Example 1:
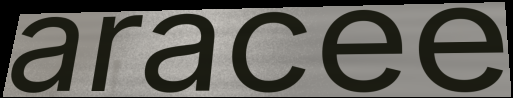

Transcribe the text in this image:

aracee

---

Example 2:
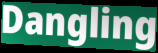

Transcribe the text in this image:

Dangling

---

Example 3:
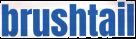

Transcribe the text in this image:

brushtail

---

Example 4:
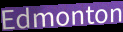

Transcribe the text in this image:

Edmonton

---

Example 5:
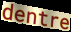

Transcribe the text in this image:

dentre